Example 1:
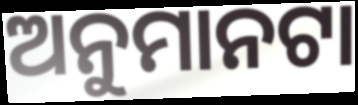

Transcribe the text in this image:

ଅନୁମାନଟା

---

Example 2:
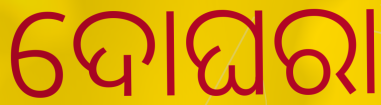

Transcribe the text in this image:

ଦୋଘରା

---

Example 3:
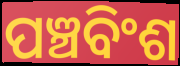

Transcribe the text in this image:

ପଞ୍ଚବିଂଶ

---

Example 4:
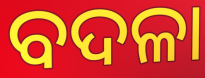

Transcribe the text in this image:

ବଦଳା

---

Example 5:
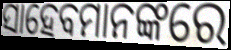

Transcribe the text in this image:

ସାହେବମାନଙ୍କରେ